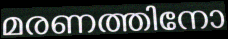
മരണത്തിനോ